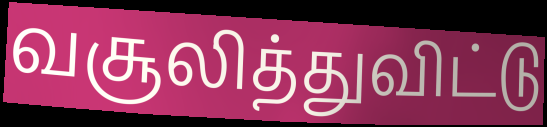
வசூலித்துவிட்டு